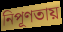
নিপূণতায়